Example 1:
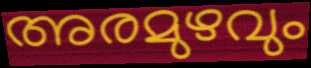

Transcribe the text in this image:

അരമുഴവും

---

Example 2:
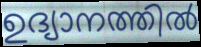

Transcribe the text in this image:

ഉദ്യാനത്തിൽ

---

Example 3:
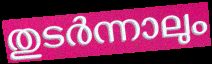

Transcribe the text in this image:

തുടർന്നാലും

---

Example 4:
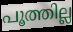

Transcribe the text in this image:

പൂത്തില്ല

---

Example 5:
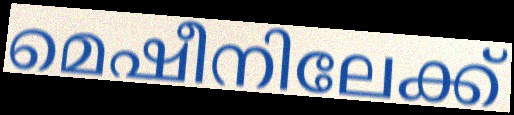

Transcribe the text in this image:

മെഷീനിലേക്ക്